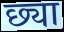
छ्या